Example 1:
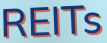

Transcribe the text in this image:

REITs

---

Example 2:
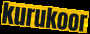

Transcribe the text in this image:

kurukoor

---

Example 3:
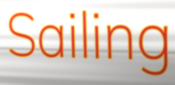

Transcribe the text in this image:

Sailing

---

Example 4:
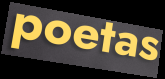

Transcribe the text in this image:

poetas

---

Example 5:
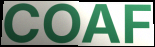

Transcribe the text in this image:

COAF